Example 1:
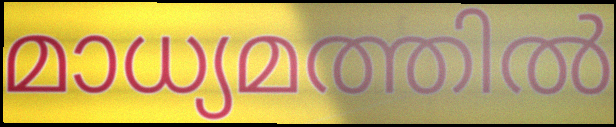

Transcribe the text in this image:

മാധ്യമത്തിൽ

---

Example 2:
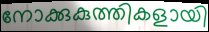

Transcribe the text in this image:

നോക്കുകുത്തികളായി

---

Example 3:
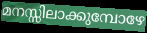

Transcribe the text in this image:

മനസ്സിലാക്കുമ്പോഴേ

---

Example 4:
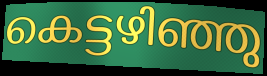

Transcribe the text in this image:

കെട്ടഴിഞ്ഞു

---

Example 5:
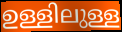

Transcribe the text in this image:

ഉള്ളിലുള്ള